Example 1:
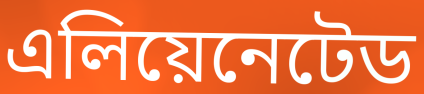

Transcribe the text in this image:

এলিয়েনেটেড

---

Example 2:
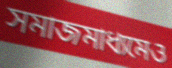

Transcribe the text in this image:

সমাজমাধ্যমেও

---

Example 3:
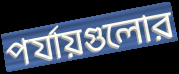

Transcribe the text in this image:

পর্যায়গুলোর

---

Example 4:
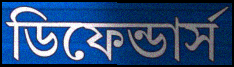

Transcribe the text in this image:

ডিফেন্ডার্স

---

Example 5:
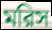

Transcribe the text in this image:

মরিস